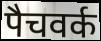
पैचवर्क